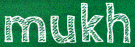
mukh